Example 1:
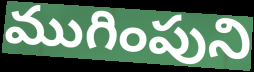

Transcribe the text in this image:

ముగింపుని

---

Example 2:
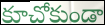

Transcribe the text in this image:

కూచోకుండా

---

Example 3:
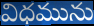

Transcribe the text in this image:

విధమును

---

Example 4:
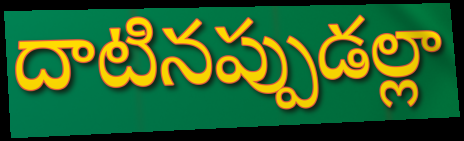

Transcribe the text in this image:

దాటినప్పుడల్లా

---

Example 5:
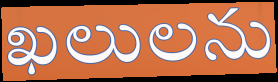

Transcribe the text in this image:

ఖలులను